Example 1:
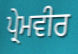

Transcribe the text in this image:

ਪ੍ਰੇਮਵੀਰ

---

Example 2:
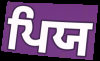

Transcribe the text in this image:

ਪਿਯ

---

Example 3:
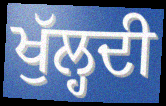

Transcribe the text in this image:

ਖੁੱਲ੍ਹਦੀ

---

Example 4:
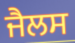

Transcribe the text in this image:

ਜੈਲਸ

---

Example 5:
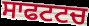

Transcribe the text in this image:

ਸਾਫਟਟਚ